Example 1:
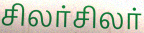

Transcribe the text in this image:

சிலர்சிலர்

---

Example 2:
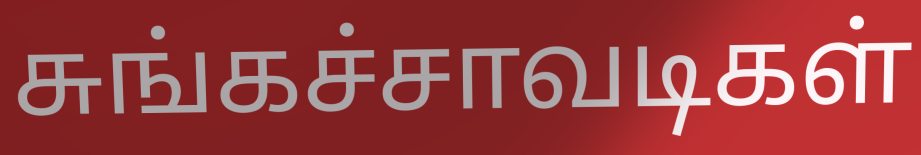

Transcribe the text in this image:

சுங்கச்சாவடிகள்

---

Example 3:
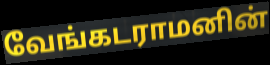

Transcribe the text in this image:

வேங்கடராமனின்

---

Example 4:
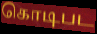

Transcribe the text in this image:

கொடிபட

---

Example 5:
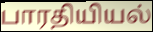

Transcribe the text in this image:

பாரதியியல்